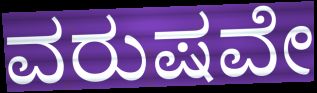
ವರುಷವೇ